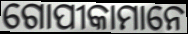
ଗୋପୀକାମାନେ